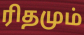
ரிதமும்